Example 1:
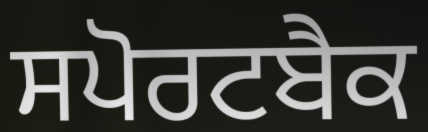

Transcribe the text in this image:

ਸਪੋਰਟਬੈਕ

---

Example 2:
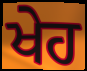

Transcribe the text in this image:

ਖੇਹ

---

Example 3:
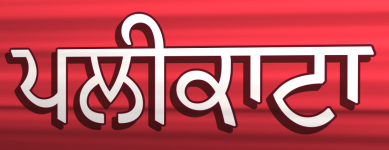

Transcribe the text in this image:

ਪਲੀਕਾਟਾ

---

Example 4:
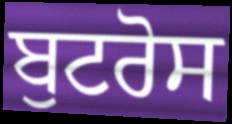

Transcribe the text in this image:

ਬੁਟਰੋਸ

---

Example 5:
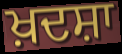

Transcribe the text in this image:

ਖ਼ਦਸ਼ਾ